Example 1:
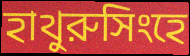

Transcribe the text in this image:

হাথুরুসিংহে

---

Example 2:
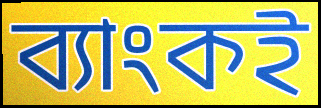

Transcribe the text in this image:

ব্যাংকই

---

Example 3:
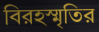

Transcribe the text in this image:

বিরহস্মৃতির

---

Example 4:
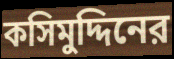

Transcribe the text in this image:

কসিমুদ্দিনের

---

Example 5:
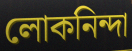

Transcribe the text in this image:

লোকনিন্দা